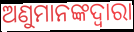
ଅଣୁମାନଙ୍କଦ୍ଵାରା